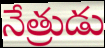
నేత్రుడు